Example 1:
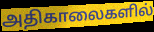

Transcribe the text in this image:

அதிகாலைகளில்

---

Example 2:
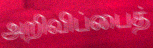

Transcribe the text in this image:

அறிவிப்பைத்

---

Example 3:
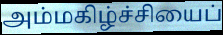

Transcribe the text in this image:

அம்மகிழ்ச்சியைப்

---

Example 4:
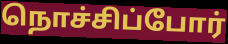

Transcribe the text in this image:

நொச்சிப்போர்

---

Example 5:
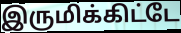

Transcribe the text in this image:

இருமிக்கிட்டே